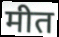
मीत